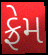
ફ્રેમ